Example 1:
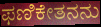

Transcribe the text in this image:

ಫಣಿಕೇತನನು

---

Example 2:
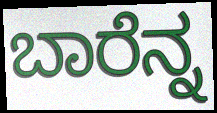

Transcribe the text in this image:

ಬಾರೆನ್ನ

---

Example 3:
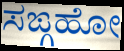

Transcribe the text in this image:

ಸಙ್ಗಹೋ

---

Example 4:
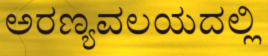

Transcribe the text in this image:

ಅರಣ್ಯವಲಯದಲ್ಲಿ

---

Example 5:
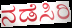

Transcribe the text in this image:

ನಡೆಸಿರಿ